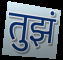
तुझं